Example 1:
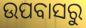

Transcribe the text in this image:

ଉପବାସରୁ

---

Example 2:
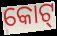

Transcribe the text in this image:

କୋଟ୍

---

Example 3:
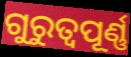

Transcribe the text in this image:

ଗୁରୁତ୍ବପୂର୍ଣ୍ଣ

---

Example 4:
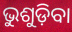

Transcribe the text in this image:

ଭୁଶୁଡ଼ିବା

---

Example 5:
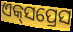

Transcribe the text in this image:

ଏକ୍‌ସପ୍ରେସ